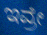
ಇವ್ರೇ